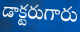
డాక్టరుగారు